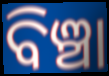
ବିଞ୍ଚା